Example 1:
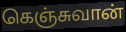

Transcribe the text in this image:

கெஞ்சுவான்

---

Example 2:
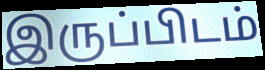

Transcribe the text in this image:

இருப்பிடம்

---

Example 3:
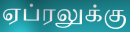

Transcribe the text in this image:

ஏப்ரலுக்கு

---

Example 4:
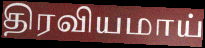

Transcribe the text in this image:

திரவியமாய்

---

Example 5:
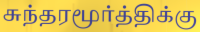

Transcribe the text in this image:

சுந்தரமூர்த்திக்கு